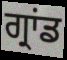
ਗ੍ਰਾਂਡ